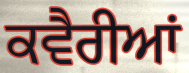
ਕਵੈਰੀਆਂ